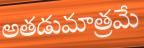
అతడుమాత్రమే